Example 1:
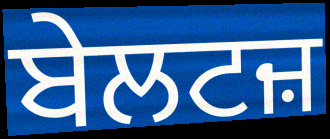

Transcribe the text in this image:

ਬੇਲਟਜ਼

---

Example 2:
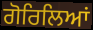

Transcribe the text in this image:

ਗੋਰਿਲਿਆਂ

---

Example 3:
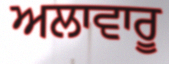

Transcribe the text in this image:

ਅਲਾਵਾਰੂ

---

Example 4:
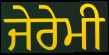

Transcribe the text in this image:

ਜੇਰੇਮੀ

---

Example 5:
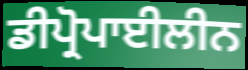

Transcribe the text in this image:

ਡੀਪ੍ਰੋਪਾਈਲੀਨ